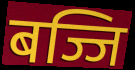
बज्जि